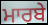
ਮਾਰਬੇ